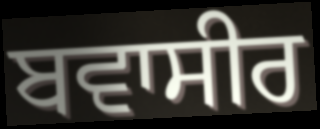
ਬਵਾਸੀਰ